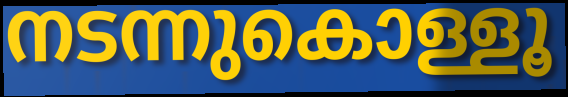
നടന്നുകൊള്ളൂ